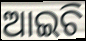
ଆଇଚି